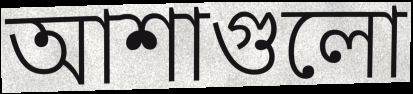
আশাগুলো